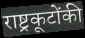
राष्ट्रकूटोंकी